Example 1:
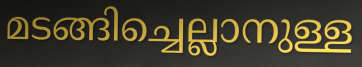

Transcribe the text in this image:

മടങ്ങിച്ചെല്ലാനുള്ള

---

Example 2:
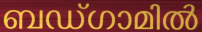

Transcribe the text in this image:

ബഡ്ഗാമിൽ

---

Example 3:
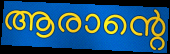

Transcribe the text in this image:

ആരാന്റെ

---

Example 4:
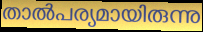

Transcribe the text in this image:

താൽപര്യമായിരുന്നു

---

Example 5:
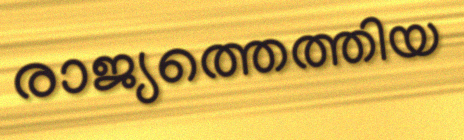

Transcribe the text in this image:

രാജ്യത്തെത്തിയ